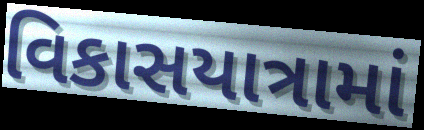
વિકાસયાત્રામાં